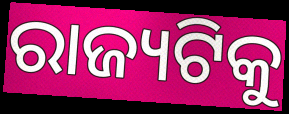
ରାଜ୍ୟଟିକୁ